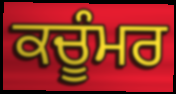
ਕਚੂੰਮਰ